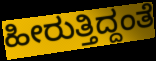
ಹೀರುತ್ತಿದ್ದಂತೆ